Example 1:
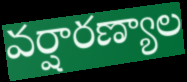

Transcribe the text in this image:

వర్షారణ్యాల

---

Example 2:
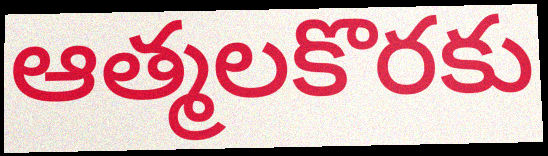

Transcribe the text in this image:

ఆత్మలకొరకు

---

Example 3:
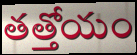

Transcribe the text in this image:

తత్తోయం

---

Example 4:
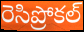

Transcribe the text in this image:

రెసిప్రోకల్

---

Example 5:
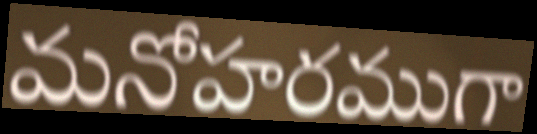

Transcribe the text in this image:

మనోహరముగా